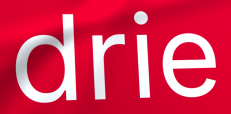
drie